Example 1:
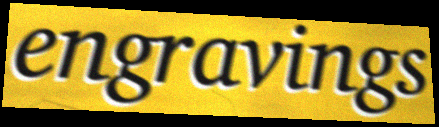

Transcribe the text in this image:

engravings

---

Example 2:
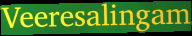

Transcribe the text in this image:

Veeresalingam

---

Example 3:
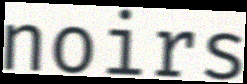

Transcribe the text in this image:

noirs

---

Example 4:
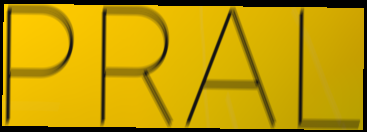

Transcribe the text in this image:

PRAL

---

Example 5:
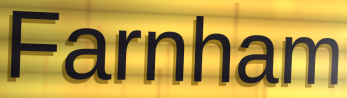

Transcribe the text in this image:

Farnham